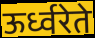
ऊर्ध्वरेते